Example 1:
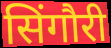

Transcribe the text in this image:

सिंगौरी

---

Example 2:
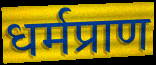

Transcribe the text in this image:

धर्मप्राण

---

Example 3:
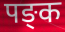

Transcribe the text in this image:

पङ्क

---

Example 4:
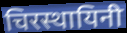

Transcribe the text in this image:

चिरस्थायिनी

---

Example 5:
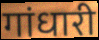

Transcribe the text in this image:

गांधारी